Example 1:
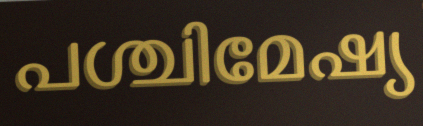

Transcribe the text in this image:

പശ്ചിമേഷ്യ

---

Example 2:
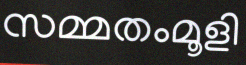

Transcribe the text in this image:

സമ്മതംമൂളി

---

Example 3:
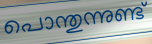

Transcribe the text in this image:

പൊന്തുന്നുണ്ട്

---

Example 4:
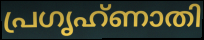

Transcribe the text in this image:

പ്രഗൃഹ്ണാതി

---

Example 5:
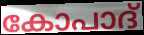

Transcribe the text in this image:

കോപാദ്